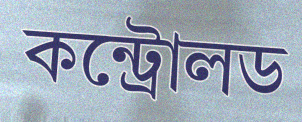
কন্ট্রোলড